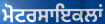
ਮੋਟਰਸਾਇਕਲਾਂ